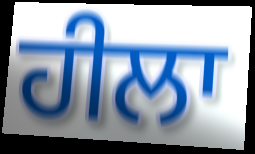
ਹੀਲਾ